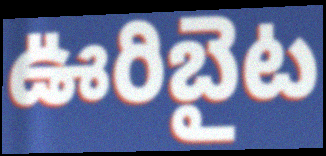
ఊరిబైట